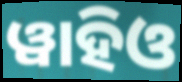
ୱାହିଓ